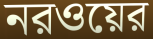
নরওয়ের